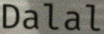
Dalal